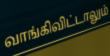
வாங்கிவிட்டாலும்